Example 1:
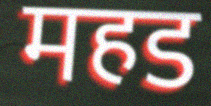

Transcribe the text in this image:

महड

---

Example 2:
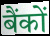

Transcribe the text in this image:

बैंकों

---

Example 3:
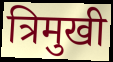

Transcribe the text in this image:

त्रिमुखी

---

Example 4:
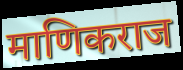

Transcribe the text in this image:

माणिकराज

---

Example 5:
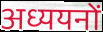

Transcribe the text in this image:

अध्ययनों